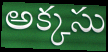
అక్కసు